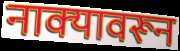
नाक्यावरून